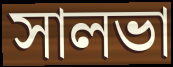
সালভা